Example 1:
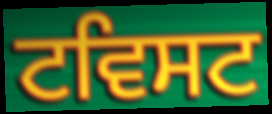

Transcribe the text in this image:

ਟਵਿਸਟ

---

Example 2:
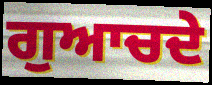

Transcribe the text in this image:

ਗੁਆਚਦੇ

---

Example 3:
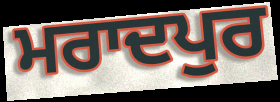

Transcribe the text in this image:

ਮਰਾਦਪੁਰ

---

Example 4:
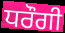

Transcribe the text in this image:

ਧਰੌਗੀ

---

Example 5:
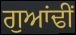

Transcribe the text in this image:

ਗੁਆਂਢੀਂ